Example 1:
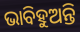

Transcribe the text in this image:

ଭାବିହୁଅନ୍ତି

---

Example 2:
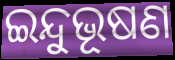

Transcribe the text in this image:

ଇନ୍ଦୁଭୂଷଣ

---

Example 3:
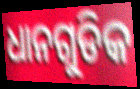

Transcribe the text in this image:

ଧାନଗୁଡିକ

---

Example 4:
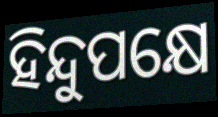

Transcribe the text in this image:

ହିନ୍ଦୁପକ୍ଷେ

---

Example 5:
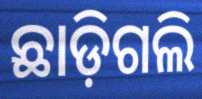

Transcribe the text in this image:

ଛାଡ଼ିଗଲି